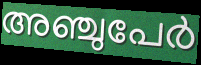
അഞ്ചുപേർ